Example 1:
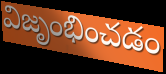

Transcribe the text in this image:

విజృంభించడం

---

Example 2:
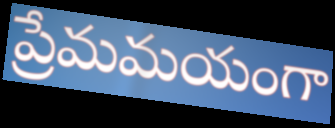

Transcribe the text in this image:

ప్రేమమయంగా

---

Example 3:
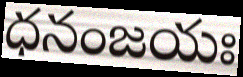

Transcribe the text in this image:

ధనంజయః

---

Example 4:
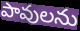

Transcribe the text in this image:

పావులను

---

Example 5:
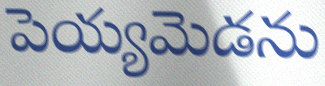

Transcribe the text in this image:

పెయ్యమెడను